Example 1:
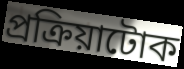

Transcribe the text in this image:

প্ৰক্ৰিয়াটোক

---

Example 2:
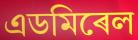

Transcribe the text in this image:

এডমিৰেল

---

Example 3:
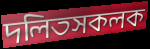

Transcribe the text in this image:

দলিতসকলক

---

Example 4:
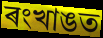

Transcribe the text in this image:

ৰংখাঙত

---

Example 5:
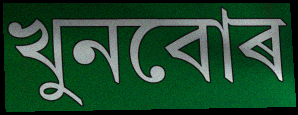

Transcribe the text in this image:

খুনবোৰ